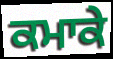
ਕਮਾਕੇ